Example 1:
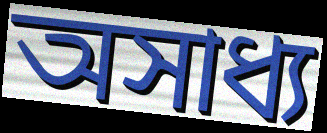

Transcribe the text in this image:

অসাধ্য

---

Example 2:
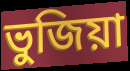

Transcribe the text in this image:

ভুজিয়া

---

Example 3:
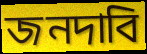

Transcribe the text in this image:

জনদাবি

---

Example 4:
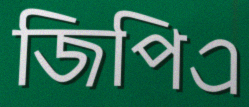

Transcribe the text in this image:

জিপিএ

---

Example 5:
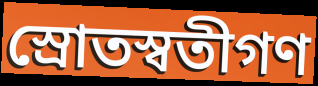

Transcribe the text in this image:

স্রোতস্বতীগণ